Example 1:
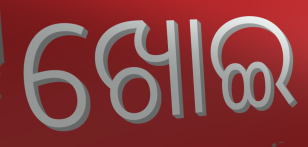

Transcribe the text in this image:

ଖୋଇ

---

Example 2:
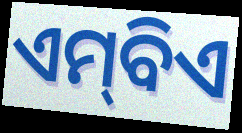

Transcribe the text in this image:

ଏମ୍‌ବିଏ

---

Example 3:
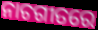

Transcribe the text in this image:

ନାଚଗୀତରେ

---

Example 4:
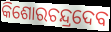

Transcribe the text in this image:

କିଶୋରଚନ୍ଦ୍ରଦେବ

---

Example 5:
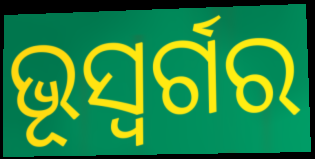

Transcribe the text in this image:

ଭୂସ୍ବର୍ଗର